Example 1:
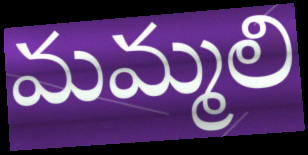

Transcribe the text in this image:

మమ్మలి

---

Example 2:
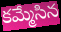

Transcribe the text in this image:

కమ్మేసిన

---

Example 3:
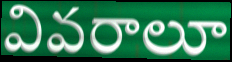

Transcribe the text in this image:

వివరాలూ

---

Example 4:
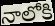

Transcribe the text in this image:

నాలోకి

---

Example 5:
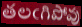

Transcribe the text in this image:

తలఁగిపోవు